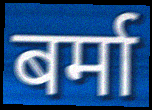
बर्मा